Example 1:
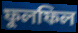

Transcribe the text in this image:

ফুলফিল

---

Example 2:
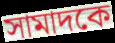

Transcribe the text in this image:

সামাদকে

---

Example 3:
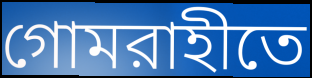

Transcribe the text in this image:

গোমরাহীতে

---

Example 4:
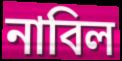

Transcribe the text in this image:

নাবিল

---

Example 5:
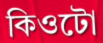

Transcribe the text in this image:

কিওটো